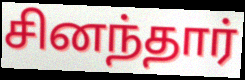
சினந்தார்